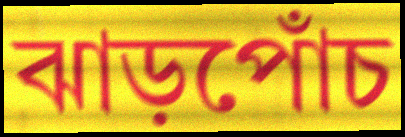
ঝাড়পোঁচ